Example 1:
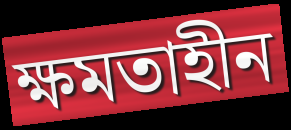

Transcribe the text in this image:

ক্ষমতাহীন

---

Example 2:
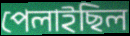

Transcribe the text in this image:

পেলাইছিল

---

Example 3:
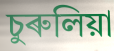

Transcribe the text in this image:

চুৰুলিয়া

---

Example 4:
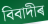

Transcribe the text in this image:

বিবাদীৰ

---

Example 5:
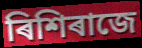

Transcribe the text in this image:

ৰিশিৰাজে